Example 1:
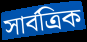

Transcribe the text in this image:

সার্বত্রিক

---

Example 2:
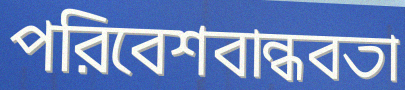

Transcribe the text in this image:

পরিবেশবান্ধবতা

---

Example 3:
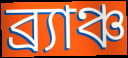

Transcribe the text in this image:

ব্র্যাঞ্চ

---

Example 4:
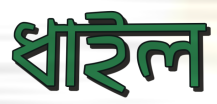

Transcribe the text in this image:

ধাইল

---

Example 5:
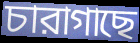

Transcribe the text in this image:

চারাগাছে